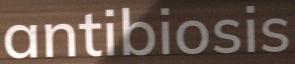
antibiosis